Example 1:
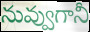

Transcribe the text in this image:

నువ్వుగానీ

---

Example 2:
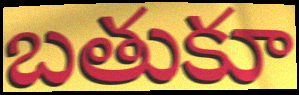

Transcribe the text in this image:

బతుకూ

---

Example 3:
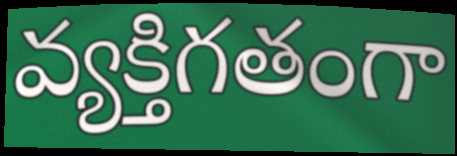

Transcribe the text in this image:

వ్యక్తిగతంగా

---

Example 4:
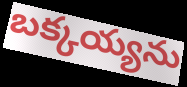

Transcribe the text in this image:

బక్కయ్యను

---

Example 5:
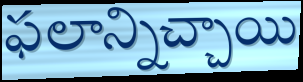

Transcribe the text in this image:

ఫలాన్నిచ్చాయి